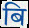
बि